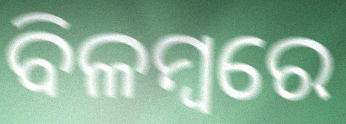
ବିଳମ୍ୱରେ